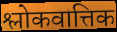
श्लोकवात्तिक